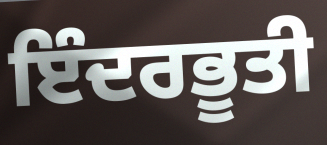
ਇੰਦਰਭੂਤੀ